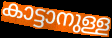
കാട്ടാനുള്ള